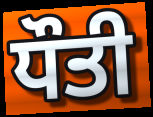
ਧੌਤੀ